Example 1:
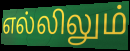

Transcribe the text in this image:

எல்லிலும்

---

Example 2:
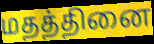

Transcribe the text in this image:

மதத்தினை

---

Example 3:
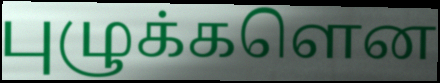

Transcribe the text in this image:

புழுக்களென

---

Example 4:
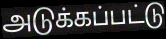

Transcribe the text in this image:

அடுக்கப்பட்டு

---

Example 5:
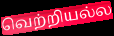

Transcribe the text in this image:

வெற்றியல்ல